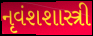
નૃવંશશાસ્ત્રી